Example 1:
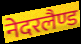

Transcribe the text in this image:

नेदरलैण्ड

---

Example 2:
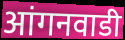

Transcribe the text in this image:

आंगनवाडी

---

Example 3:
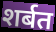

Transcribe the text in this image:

शर्बत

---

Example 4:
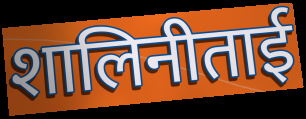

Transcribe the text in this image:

शालिनीताई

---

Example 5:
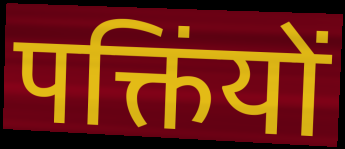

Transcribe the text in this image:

पक्तिंयों